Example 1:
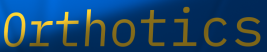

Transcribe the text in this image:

Orthotics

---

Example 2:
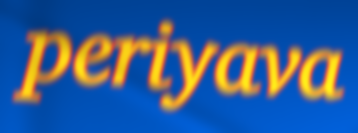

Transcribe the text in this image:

periyava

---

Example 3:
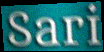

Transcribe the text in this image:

Sari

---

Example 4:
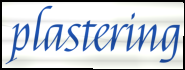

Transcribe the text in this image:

plastering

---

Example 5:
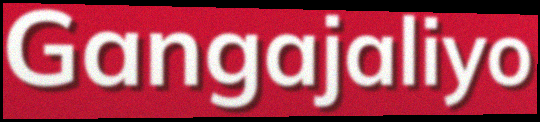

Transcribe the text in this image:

Gangajaliyo